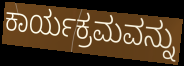
ಕಾರ್ಯಕ್ರಮವನ್ನು